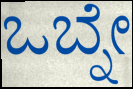
ಒಬ್ನೇ